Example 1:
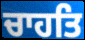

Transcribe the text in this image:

ਚਾਹਤਿ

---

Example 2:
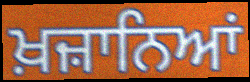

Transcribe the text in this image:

ਖ਼ਜ਼ਾਨਿਆਂ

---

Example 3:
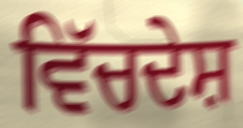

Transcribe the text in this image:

ਵਿੱਚਦੇਸ਼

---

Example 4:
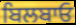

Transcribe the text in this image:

ਬਿਲਬਾਓ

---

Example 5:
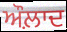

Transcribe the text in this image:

ਔਲ਼ਾਦ